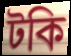
টকি